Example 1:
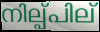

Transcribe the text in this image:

നില്പ്പില്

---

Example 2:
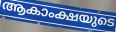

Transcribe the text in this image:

ആകാംക്ഷയുടെ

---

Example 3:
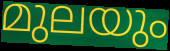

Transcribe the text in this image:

മുലയും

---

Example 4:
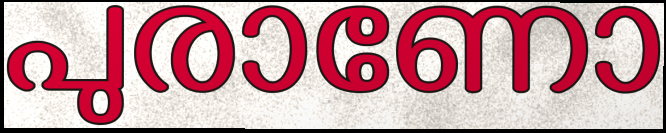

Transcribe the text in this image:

പുരാണോ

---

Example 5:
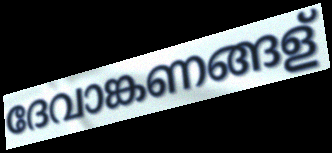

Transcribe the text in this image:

ദേവാങ്കണങ്ങള്